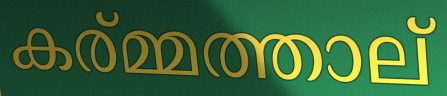
കര്മ്മത്താല്